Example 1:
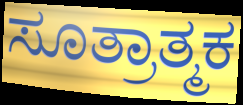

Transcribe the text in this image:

ಸೂತ್ರಾತ್ಮಕ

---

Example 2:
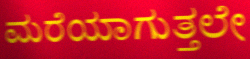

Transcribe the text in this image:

ಮರೆಯಾಗುತ್ತಲೇ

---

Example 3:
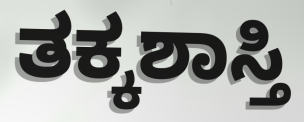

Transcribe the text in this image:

ತಕ್ಕಶಾಸ್ತಿ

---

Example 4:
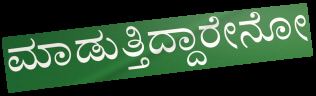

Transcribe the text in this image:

ಮಾಡುತ್ತಿದ್ದಾರೇನೋ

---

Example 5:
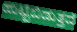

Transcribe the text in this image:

ಹುಟ್ಟಿಬಿಡುತ್ತದೆ